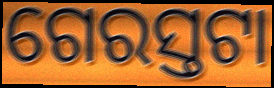
ଗେରସ୍ତଟା